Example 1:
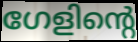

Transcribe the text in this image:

ഗേളിന്റെ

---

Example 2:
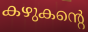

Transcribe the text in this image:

കഴുകന്റെ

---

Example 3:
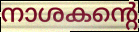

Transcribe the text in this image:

നാശകന്റെ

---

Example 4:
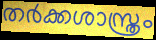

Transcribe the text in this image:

തർക്കശാസ്ത്രം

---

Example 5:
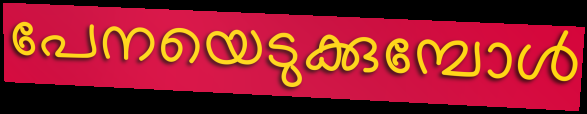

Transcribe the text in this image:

പേനയെടുക്കുമ്പോൾ